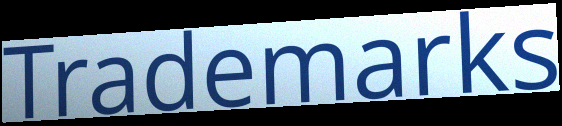
Trademarks